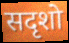
सदृशो